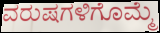
ವರುಷಗಳಿಗೊಮ್ಮೆ